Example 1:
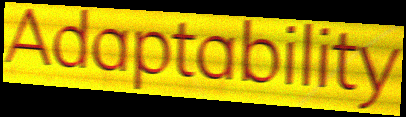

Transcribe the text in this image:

Adaptability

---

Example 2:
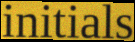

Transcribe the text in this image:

initials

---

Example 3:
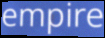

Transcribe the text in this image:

empire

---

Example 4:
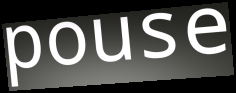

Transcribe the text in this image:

pouse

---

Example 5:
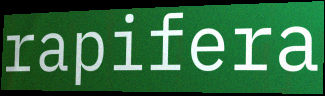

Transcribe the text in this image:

rapifera